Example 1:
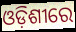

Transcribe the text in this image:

ଓଡ଼ିଶୀରେ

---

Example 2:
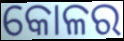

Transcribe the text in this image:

କୋଳର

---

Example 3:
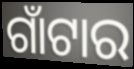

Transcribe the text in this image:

ଗାଁଟାର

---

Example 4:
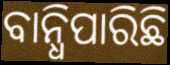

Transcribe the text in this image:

ବାନ୍ଧିପାରିଛି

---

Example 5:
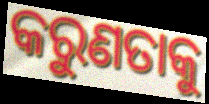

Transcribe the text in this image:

କରୁଣତାକୁ